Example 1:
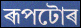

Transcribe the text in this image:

ৰূপটোৰ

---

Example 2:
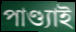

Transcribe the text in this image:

পাণ্ড্যাই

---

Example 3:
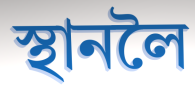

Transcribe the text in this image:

স্থানলৈ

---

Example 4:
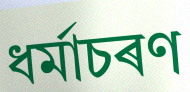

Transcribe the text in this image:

ধৰ্মাচৰণ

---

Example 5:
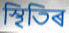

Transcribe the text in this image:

স্থিতিৰ